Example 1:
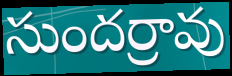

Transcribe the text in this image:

సుందర్రావు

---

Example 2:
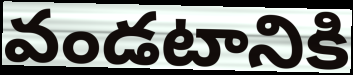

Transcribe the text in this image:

వండటానికి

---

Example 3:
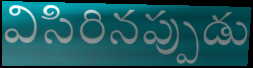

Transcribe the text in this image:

విసిరినప్పుడు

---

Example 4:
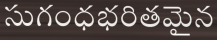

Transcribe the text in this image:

సుగంధభరితమైన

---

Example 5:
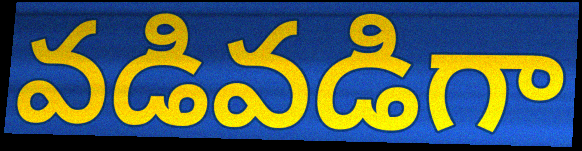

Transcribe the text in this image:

వడివడిగా